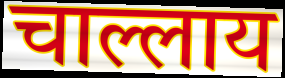
चाल्लाय